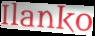
Ilanko